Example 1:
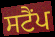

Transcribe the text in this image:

ਸਟੈਂਪ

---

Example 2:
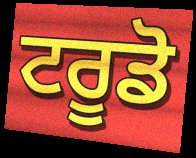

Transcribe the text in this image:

ਟਰੂਡੋ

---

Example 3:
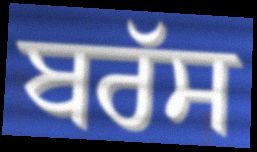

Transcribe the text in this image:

ਬਰੱਸ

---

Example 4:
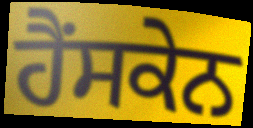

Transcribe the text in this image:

ਹੈਂਸਕੇਨ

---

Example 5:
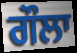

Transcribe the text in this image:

ਗੌਲਾ